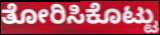
ತೋರಿಸಿಕೊಟ್ಟು